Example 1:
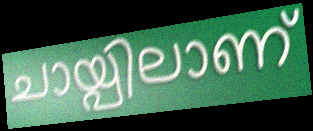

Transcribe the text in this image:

ചായ്പിലാണ്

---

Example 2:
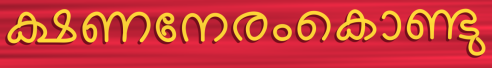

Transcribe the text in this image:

ക്ഷണനേരംകൊണ്ടു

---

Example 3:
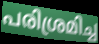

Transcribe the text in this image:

പരിശ്രമിച്ച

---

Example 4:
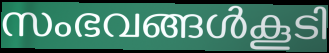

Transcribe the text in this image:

സംഭവങ്ങൾകൂടി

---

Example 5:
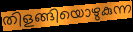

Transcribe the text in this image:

തിളങ്ങിയൊഴുകുന്ന